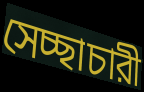
সেচ্ছাচারী